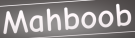
Mahboob